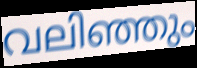
വലിഞ്ഞും